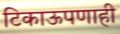
टिकाऊपणाही